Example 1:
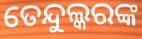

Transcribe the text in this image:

ତେନ୍ଦୁଲ୍କରଙ୍କ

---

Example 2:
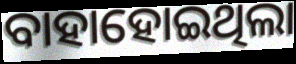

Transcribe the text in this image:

ବାହାହୋଇଥିଲା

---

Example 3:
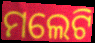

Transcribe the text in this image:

ମଲେଟି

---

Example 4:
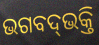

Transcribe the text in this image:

ଭଗବଦ୍‌ଭକ୍ତି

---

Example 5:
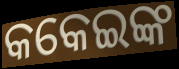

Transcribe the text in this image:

କକେଇଙ୍କ